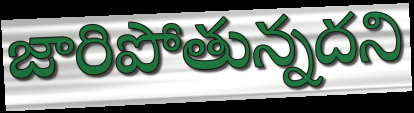
జారిపోతున్నదని